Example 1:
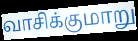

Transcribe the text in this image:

வாசிக்குமாறு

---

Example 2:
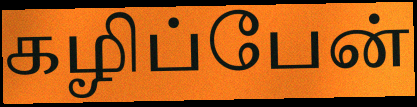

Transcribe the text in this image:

கழிப்பேன்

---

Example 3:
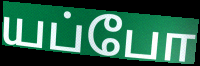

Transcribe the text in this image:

யப்போ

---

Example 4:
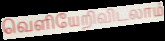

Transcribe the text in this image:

வெளியேறிவிடலாம்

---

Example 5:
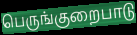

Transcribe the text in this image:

பெருங்குறைபாடு